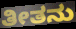
ತೀತನು